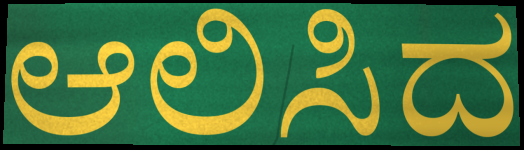
ಆಲಿಸಿದ